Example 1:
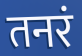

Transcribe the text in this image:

तनरं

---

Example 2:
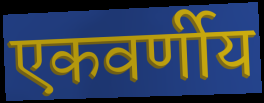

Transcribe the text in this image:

एकवर्णीय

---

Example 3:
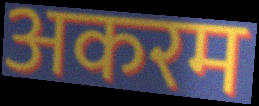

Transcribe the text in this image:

अकरम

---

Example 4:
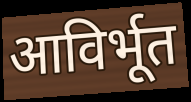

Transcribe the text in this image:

आविर्भूत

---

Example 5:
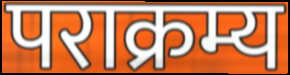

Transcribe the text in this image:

पराक्रम्य